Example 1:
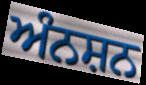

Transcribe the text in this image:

ਅੰਨਸ਼ਨ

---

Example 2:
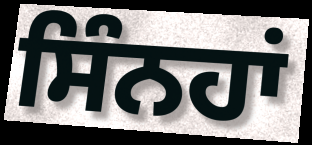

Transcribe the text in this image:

ਸਿੰਨਹਾਂ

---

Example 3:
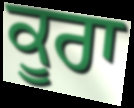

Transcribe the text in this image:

ਕੂਰਾ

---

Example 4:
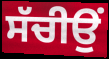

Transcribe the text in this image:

ਸੱਚੀਉਂ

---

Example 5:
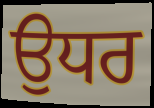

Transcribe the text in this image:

ਉਧਰ